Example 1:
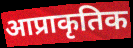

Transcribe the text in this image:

आप्राकृतिक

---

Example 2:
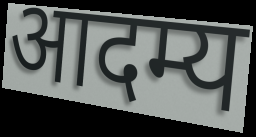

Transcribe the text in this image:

आदम्य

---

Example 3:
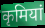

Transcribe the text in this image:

कृमियां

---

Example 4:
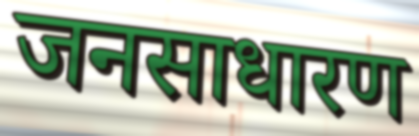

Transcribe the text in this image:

जनसाधारण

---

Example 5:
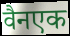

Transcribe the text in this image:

वैनएक